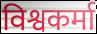
विश्वकर्मा